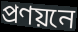
প্ৰণয়নে